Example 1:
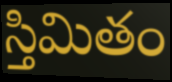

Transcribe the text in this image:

స్తిమితం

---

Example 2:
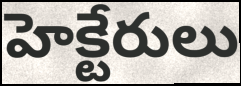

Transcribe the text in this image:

హెక్టేరులు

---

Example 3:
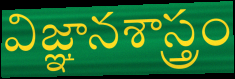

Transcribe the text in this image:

విజ్ఞానశాస్త్రం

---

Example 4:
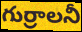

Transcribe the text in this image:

గుర్రాలనీ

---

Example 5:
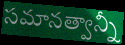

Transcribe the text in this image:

సమానత్వాన్నీ